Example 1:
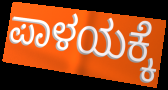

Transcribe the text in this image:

ಪಾಳಯಕ್ಕೆ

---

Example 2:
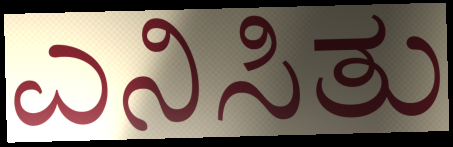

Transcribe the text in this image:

ಎನಿಸಿತು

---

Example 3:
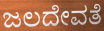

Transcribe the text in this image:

ಜಲದೇವತೆ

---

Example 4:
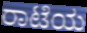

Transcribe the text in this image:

ರಾಟೆಯ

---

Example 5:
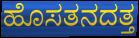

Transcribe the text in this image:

ಹೊಸತನದತ್ತ